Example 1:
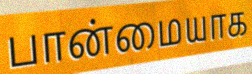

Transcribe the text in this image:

பான்மையாக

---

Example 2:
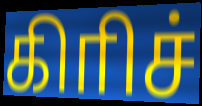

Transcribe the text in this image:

கிரிச்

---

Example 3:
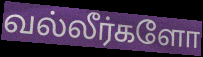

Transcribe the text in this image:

வல்லீர்களோ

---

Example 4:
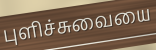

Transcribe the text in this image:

புளிச்சுவையை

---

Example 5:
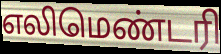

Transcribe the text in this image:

எலிமெண்டரி